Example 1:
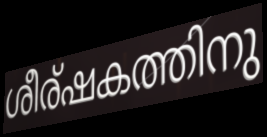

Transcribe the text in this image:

ശീര്ഷകത്തിനു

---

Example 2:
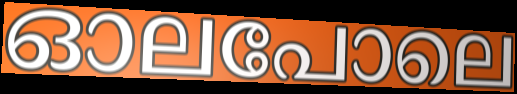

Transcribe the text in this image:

ഓലപോലെ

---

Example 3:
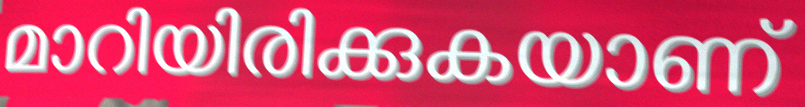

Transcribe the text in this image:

മാറിയിരിക്കുകയാണ്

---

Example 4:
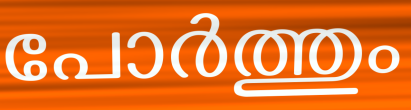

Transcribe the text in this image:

പോർത്തും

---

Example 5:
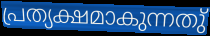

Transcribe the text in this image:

പ്രത്യക്ഷമാകുന്നതു്